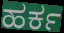
ಹರ್ಕ